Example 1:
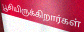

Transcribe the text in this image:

பூசியிருக்கிறார்கள்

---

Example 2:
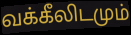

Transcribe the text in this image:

வக்கீலிடமும்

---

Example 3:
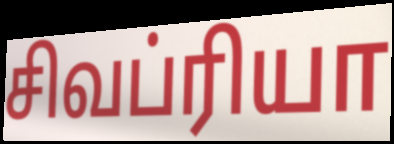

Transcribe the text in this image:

சிவப்ரியா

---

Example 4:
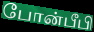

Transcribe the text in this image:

போன்பீபி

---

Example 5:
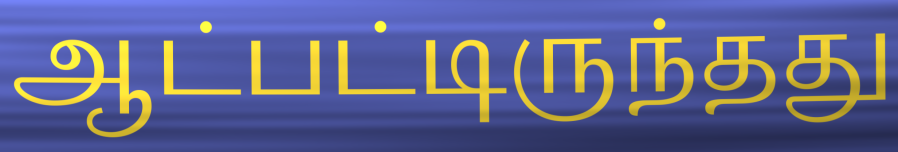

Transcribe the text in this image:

ஆட்பட்டிருந்தது